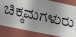
ಚಿಕ್ಕಮಗಳುರು